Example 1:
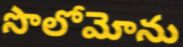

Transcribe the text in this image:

సొలోమోను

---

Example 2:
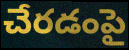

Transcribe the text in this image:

చేరడంపై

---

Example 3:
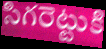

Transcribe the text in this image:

సిగరెట్టుకి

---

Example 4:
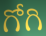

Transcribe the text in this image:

గోగి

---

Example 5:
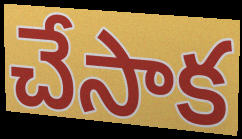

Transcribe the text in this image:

చేసాక